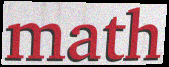
math